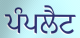
ਪੰਪਲੈਟ